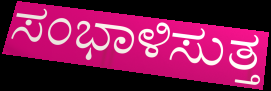
ಸಂಭಾಳಿಸುತ್ತ